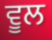
ਵੂਲ